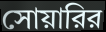
সোয়ারির